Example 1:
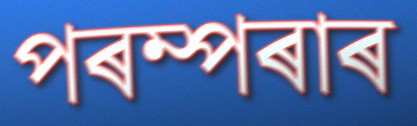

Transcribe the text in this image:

পৰম্পৰাৰ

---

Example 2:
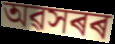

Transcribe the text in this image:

অৱসৰৰ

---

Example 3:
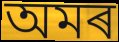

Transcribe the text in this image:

অমৰ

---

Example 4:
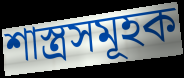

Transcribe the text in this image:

শাস্ত্ৰসমূহক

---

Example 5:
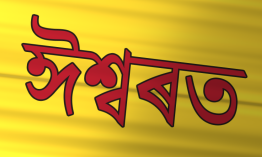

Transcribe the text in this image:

ঈশ্বৰত